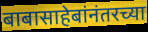
बाबासाहेबांनंतरच्या